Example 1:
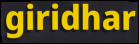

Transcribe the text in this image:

giridhar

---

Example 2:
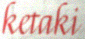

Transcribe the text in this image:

ketaki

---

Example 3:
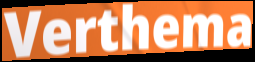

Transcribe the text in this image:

Verthema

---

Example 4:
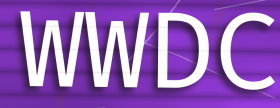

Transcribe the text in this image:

WWDC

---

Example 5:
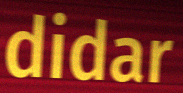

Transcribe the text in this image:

didar